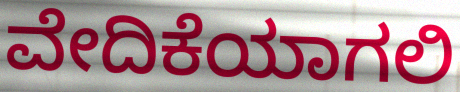
ವೇದಿಕೆಯಾಗಲಿ